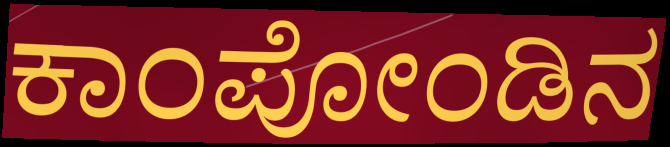
ಕಾಂಪೋಂಡಿನ